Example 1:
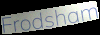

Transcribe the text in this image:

Frodsham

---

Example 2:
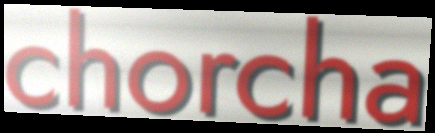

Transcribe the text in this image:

chorcha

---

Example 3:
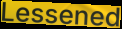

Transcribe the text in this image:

Lessened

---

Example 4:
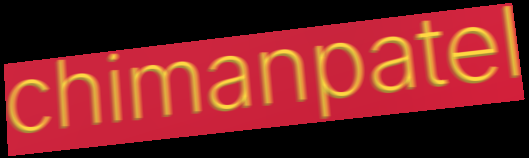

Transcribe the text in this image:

chimanpatel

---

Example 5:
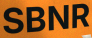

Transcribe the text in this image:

SBNR